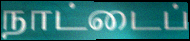
நாட்டைப்